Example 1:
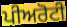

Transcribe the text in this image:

ਪੀਅਰੋਟੀ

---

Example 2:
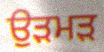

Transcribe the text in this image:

ਉੜਮੜ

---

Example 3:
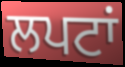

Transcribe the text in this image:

ਲਪਟਾਂ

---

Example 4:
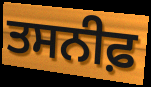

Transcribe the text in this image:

ਤਸਨੀਫ਼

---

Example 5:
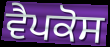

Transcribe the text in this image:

ਵੈਪਕੋਸ